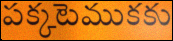
పక్కటెముకకు